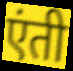
एंती